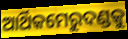
ଆର୍ଥିକମେରୁଦଣ୍ଡକୁ